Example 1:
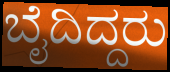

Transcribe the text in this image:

ಬೈದಿದ್ದರು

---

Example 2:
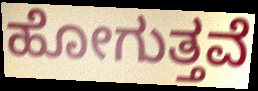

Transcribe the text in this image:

ಹೋಗುತ್ತವೆ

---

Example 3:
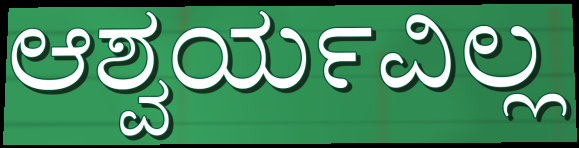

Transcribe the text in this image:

ಆಶ್ವರ್ಯವಿಲ್ಲ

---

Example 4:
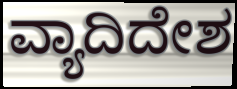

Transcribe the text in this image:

ವ್ಯಾದಿದೇಶ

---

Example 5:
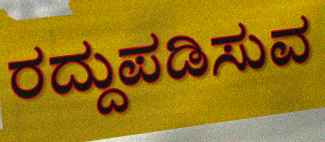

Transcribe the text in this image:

ರದ್ದುಪಡಿಸುವ